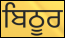
ਬਿਠੂਰ